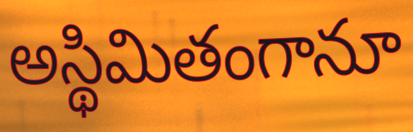
అస్థిమితంగానూ